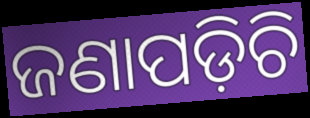
ଜଣାପଡ଼ିଚି